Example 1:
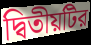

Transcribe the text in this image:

দ্বিতীয়টির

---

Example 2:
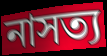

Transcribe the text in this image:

নাসত্য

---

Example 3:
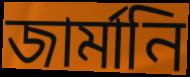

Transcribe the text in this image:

জার্মানি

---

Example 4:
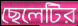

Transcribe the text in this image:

ছেলেটির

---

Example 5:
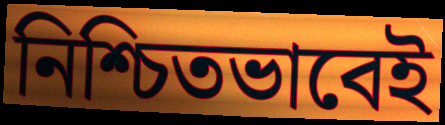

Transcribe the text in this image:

নিশ্চিতভাবেই